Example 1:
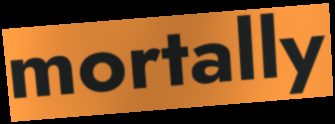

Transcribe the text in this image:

mortally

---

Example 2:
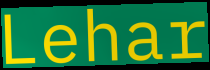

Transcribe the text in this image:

Lehar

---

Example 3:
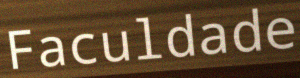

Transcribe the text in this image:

Faculdade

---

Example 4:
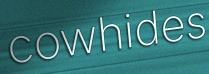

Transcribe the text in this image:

cowhides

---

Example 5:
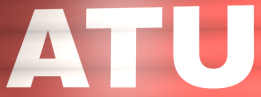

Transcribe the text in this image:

ATU